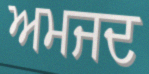
ਅਮਜਦ